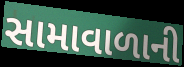
સામાવાળાની